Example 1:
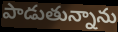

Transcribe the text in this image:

పాడుతున్నాను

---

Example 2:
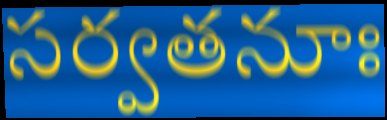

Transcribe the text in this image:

సర్వతనూః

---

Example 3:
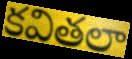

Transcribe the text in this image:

కవితలా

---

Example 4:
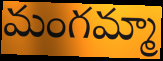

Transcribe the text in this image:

మంగమ్మా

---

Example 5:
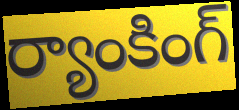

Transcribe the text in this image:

ర్యాంకింగ్